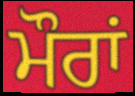
ਮੌਰਾਂ